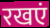
रखएं